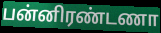
பன்னிரண்டணா